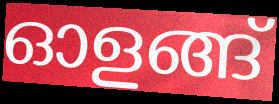
ഓളങ്ങ്